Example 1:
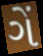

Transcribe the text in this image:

ગેં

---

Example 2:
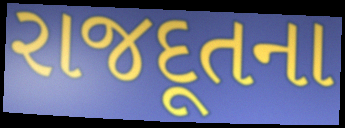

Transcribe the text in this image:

રાજદૂતના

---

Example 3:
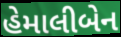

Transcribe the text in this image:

હેમાલીબેન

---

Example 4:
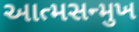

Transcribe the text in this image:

આત્મસન્મુખ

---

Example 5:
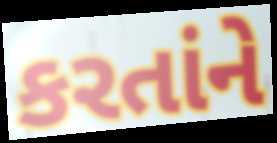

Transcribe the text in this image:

કરતાંને